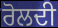
ਰੋਲਦੀ